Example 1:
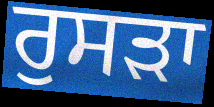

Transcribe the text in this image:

ਰੁਸੜਾ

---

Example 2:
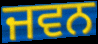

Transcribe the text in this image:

ਜਵਨ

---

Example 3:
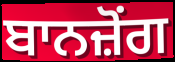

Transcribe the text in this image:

ਬਾਨਜ਼ੋਂਗ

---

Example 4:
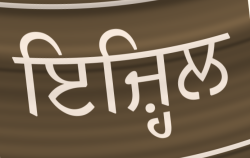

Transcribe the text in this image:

ਇਜ਼੍ਹਿਲ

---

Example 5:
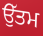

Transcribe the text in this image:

ਉੱਤਮ